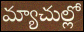
మ్యాచుల్లో